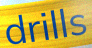
drills